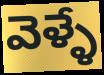
వెళ్ళే